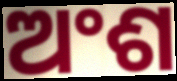
ଅଂଶ